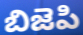
బిజెపి